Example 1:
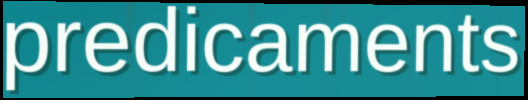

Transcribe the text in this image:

predicaments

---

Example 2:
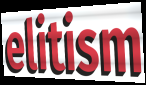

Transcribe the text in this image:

elitism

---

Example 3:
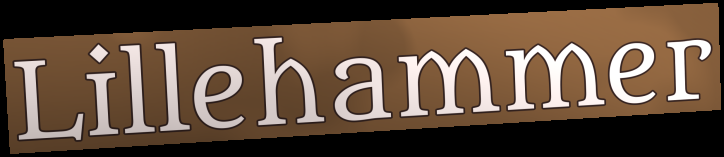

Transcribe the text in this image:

Lillehammer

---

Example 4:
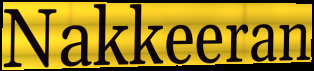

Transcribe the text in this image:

Nakkeeran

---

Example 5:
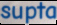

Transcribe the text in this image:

supta